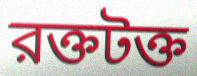
রক্তটক্ত